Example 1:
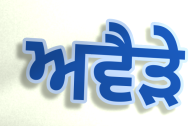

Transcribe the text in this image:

ਅਵੈੜੇ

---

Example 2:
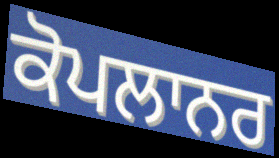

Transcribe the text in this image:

ਕੋਪਲਾਨਰ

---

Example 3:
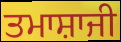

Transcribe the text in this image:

ਤਮਾਸ਼ਾਜੀ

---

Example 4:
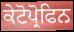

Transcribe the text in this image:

ਕੇਟੋਪ੍ਰੋਫਿਨ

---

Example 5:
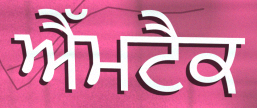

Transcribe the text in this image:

ਐੱਮਟੈਕ